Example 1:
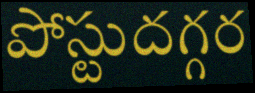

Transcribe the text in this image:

పోస్టుదగ్గర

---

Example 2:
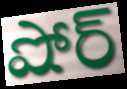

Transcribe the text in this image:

షోర్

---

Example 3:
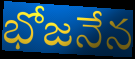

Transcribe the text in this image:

భోజనేన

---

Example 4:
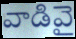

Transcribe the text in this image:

వాడివై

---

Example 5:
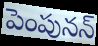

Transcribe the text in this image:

పెంపునన్